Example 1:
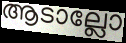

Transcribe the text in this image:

ആടാല്ലോ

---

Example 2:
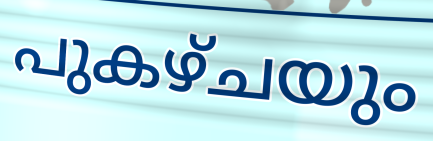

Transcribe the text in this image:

പുകഴ്ചയും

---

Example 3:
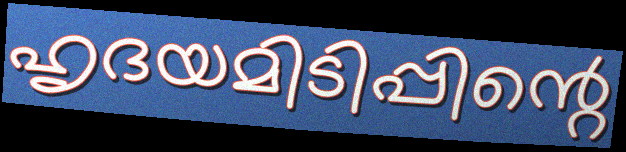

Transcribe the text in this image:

ഹൃദയമിടിപ്പിന്റെ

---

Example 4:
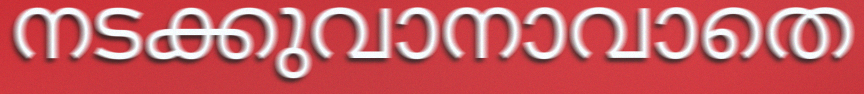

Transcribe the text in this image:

നടക്കുവാനാവാതെ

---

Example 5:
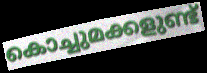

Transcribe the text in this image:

കൊച്ചുമക്കളുണ്ട്